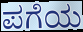
ಪಗೆಯ